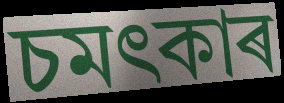
চমৎকাৰ